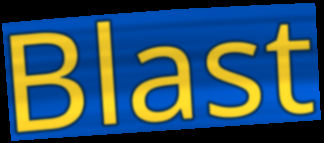
Blast